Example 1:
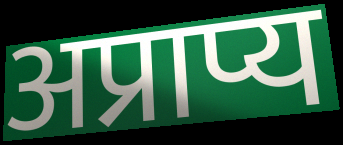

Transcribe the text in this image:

अप्राप्य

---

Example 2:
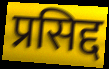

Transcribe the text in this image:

प्रसिद्द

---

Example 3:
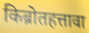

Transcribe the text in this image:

किब्रोतहत्तावा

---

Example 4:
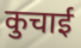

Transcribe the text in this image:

कुचाई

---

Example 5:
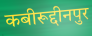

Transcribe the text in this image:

कबीरूद्दीनपुर